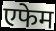
एफेम